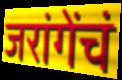
जरांगेंचं